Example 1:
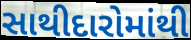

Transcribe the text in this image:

સાથીદારોમાંથી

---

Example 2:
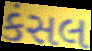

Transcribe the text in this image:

કંસલ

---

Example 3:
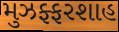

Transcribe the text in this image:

મુઝફ્ફરશાહ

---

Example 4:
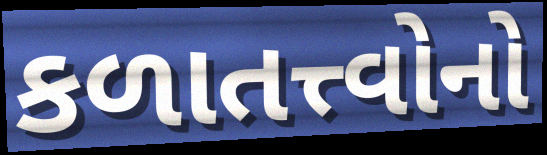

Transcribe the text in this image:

કળાતત્ત્વોનો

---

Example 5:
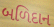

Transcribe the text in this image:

બળિદાન